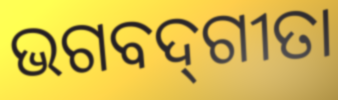
ଭଗବଦ୍‌ଗୀତା